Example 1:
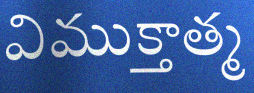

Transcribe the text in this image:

విముక్తాత్మ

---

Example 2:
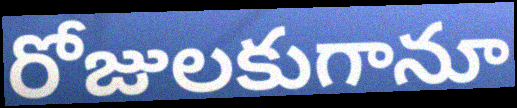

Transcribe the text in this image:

రోజులకుగానూ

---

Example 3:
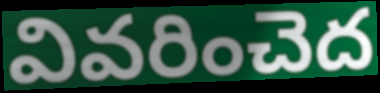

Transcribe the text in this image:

వివరించెద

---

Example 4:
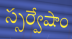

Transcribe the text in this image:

స్సర్వేషాం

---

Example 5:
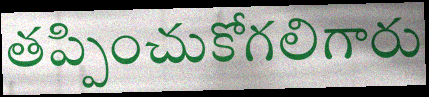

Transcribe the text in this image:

తప్పించుకోగలిగారు